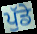
ਪੁੱਡੇ